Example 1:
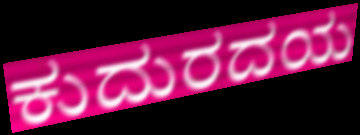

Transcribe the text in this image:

ಕುದುರದಯ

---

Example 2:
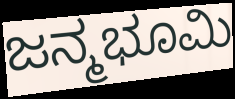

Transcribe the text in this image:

ಜನ್ಮಭೂಮಿ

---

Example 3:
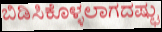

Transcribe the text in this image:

ಬಿಡಿಸಿಕೊಳ್ಳಲಾಗದಷ್ಟು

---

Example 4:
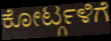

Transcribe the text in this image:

ಕೋರ್ಟ್ಗಳಿಗೆ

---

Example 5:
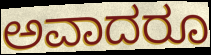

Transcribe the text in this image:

ಅವಾದರೂ